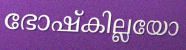
ഭോഷ്കില്ലയോ